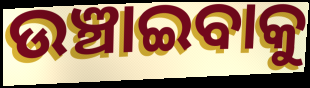
ଉଞ୍ଚାଇବାକୁ